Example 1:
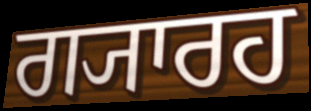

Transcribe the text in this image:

ਗ੍ਯਾਰਹ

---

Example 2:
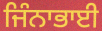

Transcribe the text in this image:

ਜਿੰਨਾਭਾਈ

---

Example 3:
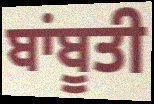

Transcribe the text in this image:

ਬਾਂਬੂਤੀ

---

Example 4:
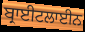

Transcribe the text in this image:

ਬ੍ਰਾਈਟਲਾਈਨ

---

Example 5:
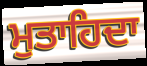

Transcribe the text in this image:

ਮੁਤਾਹਿਦਾ